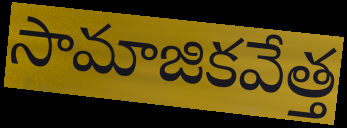
సామాజికవేత్త